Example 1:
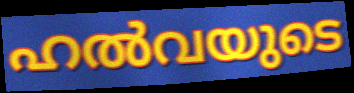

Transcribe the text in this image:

ഹൽവയുടെ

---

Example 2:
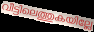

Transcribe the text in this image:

വീട്ടിലെത്തുകയില്ലേ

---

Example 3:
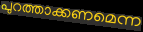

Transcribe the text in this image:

പുറത്താക്കണമെന്ന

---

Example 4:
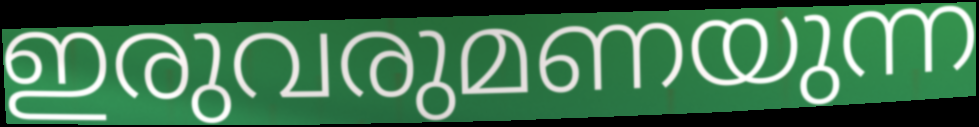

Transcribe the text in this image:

ഇരുവരുമണയുന്ന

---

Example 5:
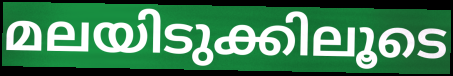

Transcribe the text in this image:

മലയിടുക്കിലൂടെ